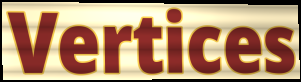
Vertices